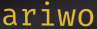
ariwo